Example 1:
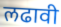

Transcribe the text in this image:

लढावी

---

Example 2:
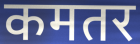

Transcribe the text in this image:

कमतर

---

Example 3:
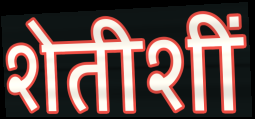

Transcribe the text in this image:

शेतीशीं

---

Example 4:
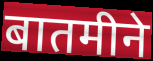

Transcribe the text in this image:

बातमीने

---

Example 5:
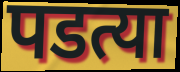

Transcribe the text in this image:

पडत्या